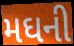
મઘની